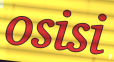
osisi